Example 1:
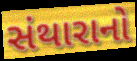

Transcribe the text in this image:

સંથારાનો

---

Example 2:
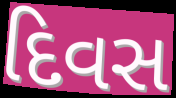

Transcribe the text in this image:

દિવસ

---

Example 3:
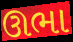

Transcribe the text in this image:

ઊભા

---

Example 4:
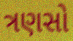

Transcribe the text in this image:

ત્રણસો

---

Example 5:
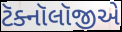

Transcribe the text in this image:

ટૅક્નૉલૉજીએ